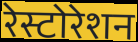
रेस्टोरेशन